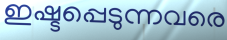
ഇഷ്ടപ്പെടുന്നവരെ